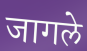
जागले